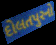
દોલતપુરનો